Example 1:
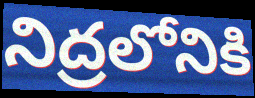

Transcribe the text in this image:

నిద్రలోనికి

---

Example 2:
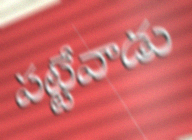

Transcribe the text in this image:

పట్టేవాడు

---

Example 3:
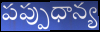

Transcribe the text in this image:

పప్పుధాన్య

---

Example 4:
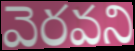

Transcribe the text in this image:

వెరవని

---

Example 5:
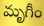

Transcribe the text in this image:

మృగీం